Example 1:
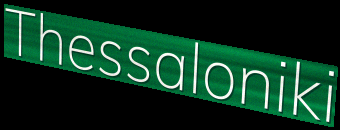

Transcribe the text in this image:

Thessaloniki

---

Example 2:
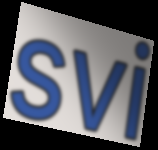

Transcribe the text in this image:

svi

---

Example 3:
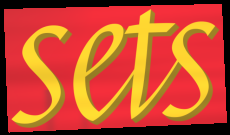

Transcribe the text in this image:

sets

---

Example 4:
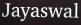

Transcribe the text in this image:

Jayaswal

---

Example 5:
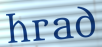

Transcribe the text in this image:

hrad